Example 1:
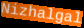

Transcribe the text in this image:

Nizhalgal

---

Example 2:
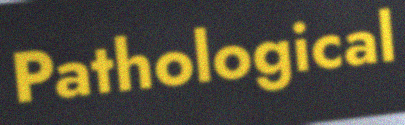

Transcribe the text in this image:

Pathological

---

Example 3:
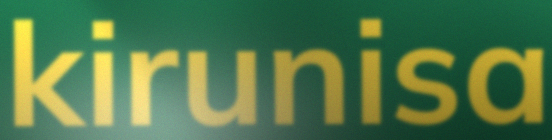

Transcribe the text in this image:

kirunisa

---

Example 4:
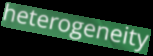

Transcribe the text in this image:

heterogeneity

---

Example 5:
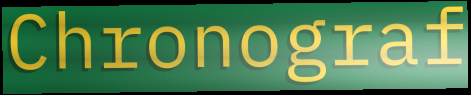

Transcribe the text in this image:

Chronograf